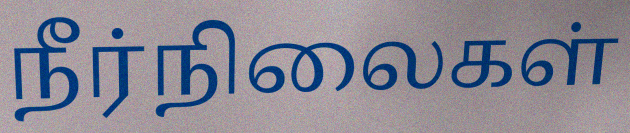
நீர்நிலைகள்